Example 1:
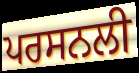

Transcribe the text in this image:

ਪਰਸਨਲੀ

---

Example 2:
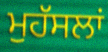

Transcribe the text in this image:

ਮੁਹੱਸਲਾਂ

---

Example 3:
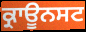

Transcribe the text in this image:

ਕ੍ਰਾਊਨਸਟ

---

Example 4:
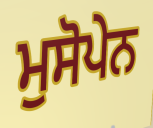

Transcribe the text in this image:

ਮੁਸੋਪੇਨ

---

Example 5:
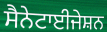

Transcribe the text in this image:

ਸੈਨੇਟਾਈਜੇਸ਼ਨ